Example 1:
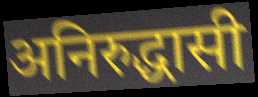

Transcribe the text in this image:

अनिरुद्धासी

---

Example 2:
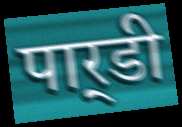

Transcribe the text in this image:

पार्डी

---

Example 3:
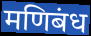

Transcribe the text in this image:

मणिबंध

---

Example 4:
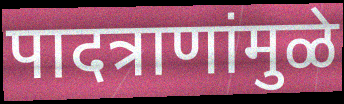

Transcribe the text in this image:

पादत्राणांमुळे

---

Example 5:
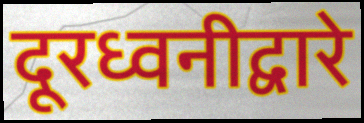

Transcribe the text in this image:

दूरध्वनीद्वारे